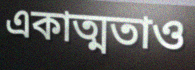
একাত্মতাও